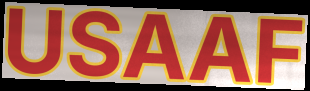
USAAF